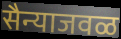
सैन्याजवळ